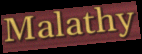
Malathy